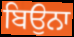
ਬਿਉਨਾ